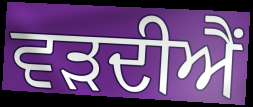
ਵੜਦੀਐਂ